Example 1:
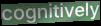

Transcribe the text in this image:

cognitively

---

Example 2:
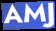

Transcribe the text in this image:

AMJ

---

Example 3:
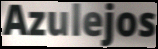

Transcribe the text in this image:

Azulejos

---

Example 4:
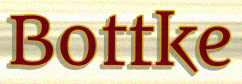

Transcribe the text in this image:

Bottke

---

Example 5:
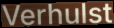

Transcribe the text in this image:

Verhulst